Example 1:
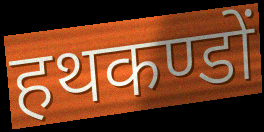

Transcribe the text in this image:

हथकण्डों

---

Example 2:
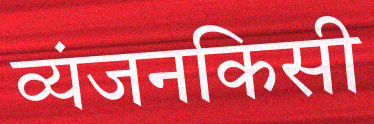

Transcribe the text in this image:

व्यंजनकिसी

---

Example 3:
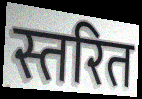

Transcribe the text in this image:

स्तरित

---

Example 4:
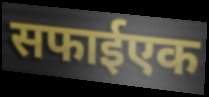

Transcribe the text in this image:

सफाईएक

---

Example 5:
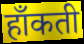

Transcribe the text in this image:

हाँकती